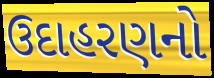
ઉદાહરણનો